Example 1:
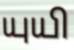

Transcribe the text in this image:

யுயி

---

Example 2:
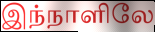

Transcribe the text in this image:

இந்நாளிலே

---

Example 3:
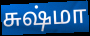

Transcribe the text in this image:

சுஷ்மா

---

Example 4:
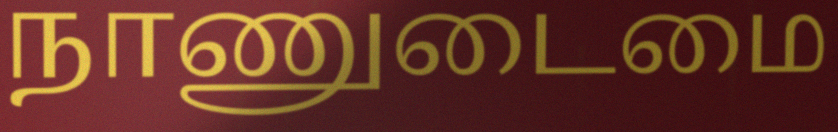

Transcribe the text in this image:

நாணுடைமை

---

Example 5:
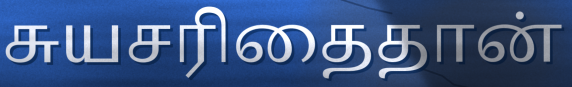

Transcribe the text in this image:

சுயசரிதைதான்